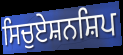
ਸਿਚੁਏਸ਼ਨਸ਼ਿਪ